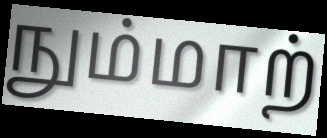
நும்மாற்